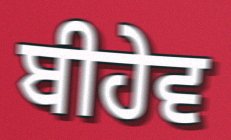
ਬੀਹੇਵ